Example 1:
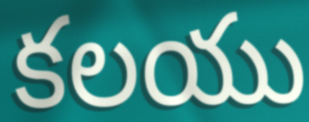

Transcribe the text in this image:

కలయు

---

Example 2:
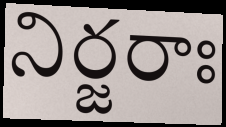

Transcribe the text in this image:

నిర్జరాః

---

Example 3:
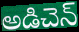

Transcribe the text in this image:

అడిచెన్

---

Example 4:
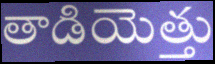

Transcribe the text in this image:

తాడియెత్తు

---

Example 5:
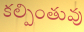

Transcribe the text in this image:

కల్పింతువు